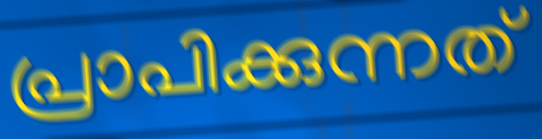
പ്രാപിക്കുന്നത്